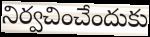
నిర్వచించేందుకు